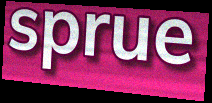
sprue